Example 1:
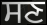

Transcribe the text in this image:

ਸਣ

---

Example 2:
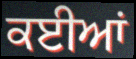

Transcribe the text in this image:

ਕਈਆਂ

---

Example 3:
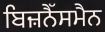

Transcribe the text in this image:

ਬਿਜ਼ਨੈੱਸਮੈਨ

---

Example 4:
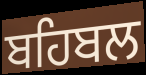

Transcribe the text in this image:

ਬਹਿਬਲ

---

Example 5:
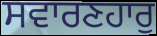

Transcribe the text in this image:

ਸਵਾਰਣਹਾਰੁ